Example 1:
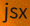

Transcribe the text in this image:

jsx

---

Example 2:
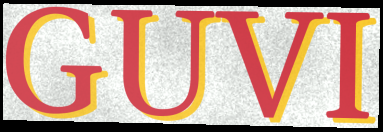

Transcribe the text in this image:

GUVI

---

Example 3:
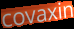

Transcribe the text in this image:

covaxin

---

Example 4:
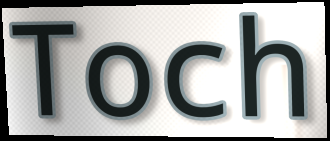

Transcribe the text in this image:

Toch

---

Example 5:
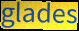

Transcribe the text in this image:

glades